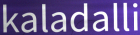
kaladalli